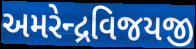
અમરેન્દ્રવિજયજી